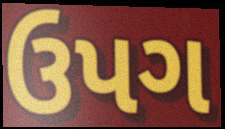
ઉપગ